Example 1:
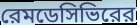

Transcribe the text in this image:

রেমডেসিভিরের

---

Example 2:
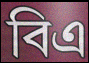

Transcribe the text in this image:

বিএ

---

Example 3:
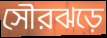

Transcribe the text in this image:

সৌরঝড়ে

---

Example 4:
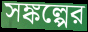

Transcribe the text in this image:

সঙ্কল্পের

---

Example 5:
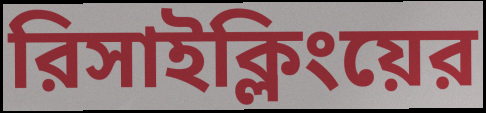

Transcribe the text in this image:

রিসাইক্লিংয়ের